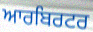
ਆਰਬਿਰਟਰ